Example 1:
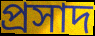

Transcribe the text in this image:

প্ৰসাদ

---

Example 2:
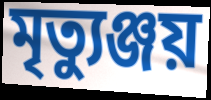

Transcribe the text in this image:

মৃত্যুঞ্জয়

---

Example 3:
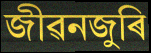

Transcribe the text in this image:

জীৱনজুৰি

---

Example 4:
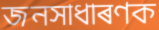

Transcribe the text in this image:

জনসাধাৰণক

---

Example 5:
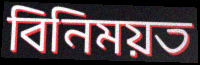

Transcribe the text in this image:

বিনিময়ত